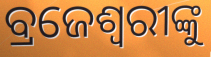
ବ୍ରଜେଶ୍ୱରୀଙ୍କୁ